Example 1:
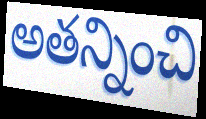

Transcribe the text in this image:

అతన్నించి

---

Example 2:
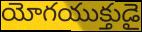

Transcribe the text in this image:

యోగయుక్తుడై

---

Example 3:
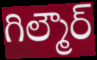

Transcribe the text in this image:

గిల్మౌర్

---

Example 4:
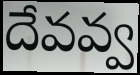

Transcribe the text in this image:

దేవవ్వ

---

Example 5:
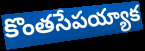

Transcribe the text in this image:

కొంతసేపయ్యాక